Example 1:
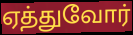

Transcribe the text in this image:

ஏத்துவோர்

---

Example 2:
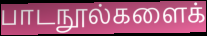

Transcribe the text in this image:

பாடநூல்களைக்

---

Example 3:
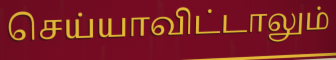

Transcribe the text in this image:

செய்யாவிட்டாலும்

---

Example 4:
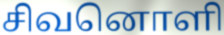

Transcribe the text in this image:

சிவனொளி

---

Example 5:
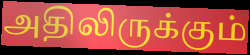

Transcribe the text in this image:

அதிலிருக்கும்